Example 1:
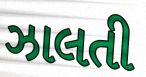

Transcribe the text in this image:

ઝાલતી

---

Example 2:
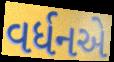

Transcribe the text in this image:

વર્ધનએ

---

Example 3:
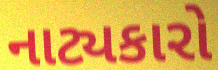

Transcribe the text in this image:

નાટ્યકારો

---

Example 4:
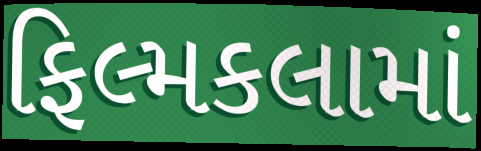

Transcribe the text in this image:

ફિલ્મકલામાં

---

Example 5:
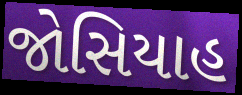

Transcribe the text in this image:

જોસિયાહ